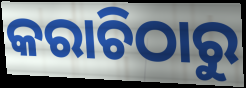
କରାଚିଠାରୁ